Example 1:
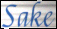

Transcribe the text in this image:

Sake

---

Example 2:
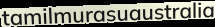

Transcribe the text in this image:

tamilmurasuaustralia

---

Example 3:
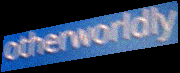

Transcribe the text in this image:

otherworldly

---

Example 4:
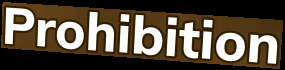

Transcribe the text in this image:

Prohibition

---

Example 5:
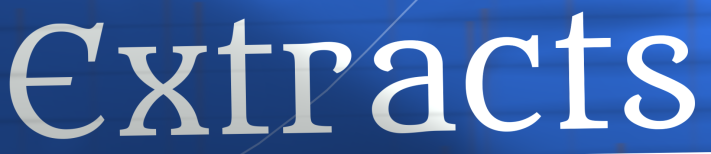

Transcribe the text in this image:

Extracts